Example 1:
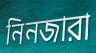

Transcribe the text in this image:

নিনজারা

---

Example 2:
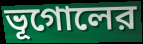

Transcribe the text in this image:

ভূগোলের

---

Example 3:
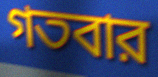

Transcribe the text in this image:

গতবার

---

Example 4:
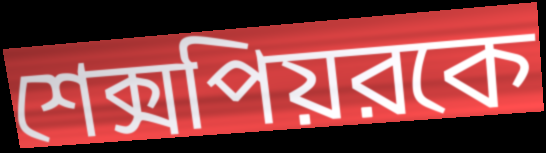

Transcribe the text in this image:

শেক্সপিয়রকে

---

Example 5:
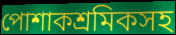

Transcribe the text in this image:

পোশাকশ্রমিকসহ